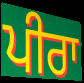
ਪੀਰਾ